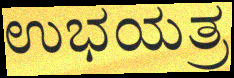
ಉಭಯತ್ರ